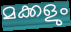
മക്കളും